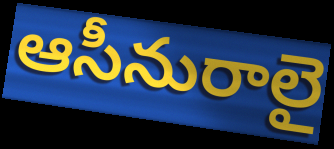
ఆసీనురాలై